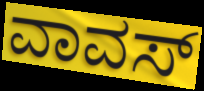
ವಾವಸ್